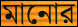
মানোর